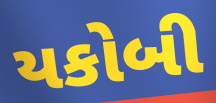
યકોબી